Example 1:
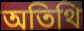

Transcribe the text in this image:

অতিথি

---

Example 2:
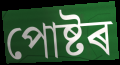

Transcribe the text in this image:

পোষ্টৰ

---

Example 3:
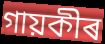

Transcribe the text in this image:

গায়কীৰ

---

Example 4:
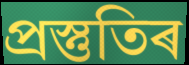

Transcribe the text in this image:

প্ৰস্তুতিৰ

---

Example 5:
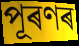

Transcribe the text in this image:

পূৰণৰ